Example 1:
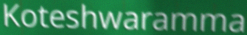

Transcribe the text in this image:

Koteshwaramma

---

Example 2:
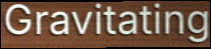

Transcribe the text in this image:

Gravitating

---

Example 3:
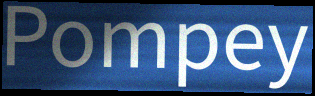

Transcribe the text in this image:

Pompey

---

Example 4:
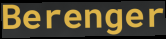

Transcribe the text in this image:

Berenger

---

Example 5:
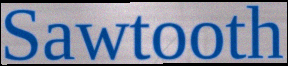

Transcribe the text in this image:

Sawtooth